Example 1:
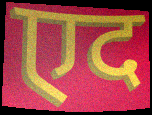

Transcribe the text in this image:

एद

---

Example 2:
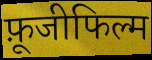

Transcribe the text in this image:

फ़ूजीफिल्म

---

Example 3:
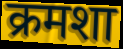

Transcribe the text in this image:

क्रमशा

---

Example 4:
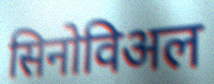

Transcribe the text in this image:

सिनोविअल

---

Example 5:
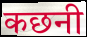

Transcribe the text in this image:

कछनी